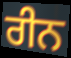
ਰੀਨ